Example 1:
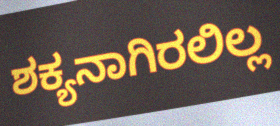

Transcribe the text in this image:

ಶಕ್ಯನಾಗಿರಲಿಲ್ಲ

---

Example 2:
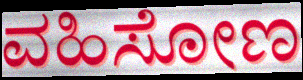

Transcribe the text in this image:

ವಹಿಸೋಣ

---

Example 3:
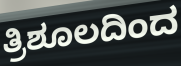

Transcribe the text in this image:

ತ್ರಿಶೂಲದಿಂದ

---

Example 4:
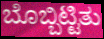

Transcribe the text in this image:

ಬೊಬ್ಬಿಟ್ಟಿತು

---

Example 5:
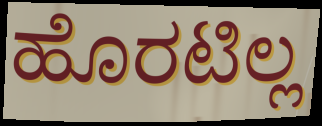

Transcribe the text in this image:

ಹೊರಟಿಲ್ಲ